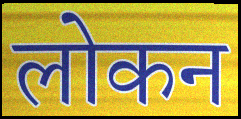
लोकन